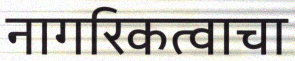
नागरिकत्वाचा